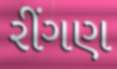
રીંગણ